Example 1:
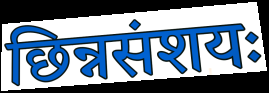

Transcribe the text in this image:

छिन्नसंशयः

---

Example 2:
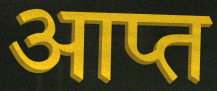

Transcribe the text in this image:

आप्त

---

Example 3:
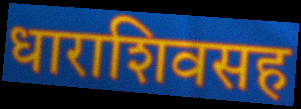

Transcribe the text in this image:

धाराशिवसह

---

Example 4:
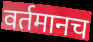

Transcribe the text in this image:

वर्तमानच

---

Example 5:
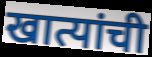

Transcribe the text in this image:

खात्यांची